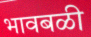
भावबळी